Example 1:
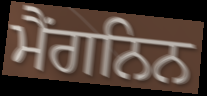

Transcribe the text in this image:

ਮੈਂਗਨਿਨ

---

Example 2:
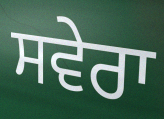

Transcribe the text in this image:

ਸਵੇਰਾ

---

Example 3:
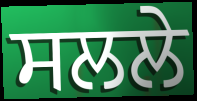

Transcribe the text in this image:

ਸਲਲੇ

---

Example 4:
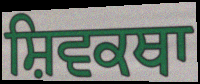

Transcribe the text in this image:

ਸ਼ਿਵਕਥਾ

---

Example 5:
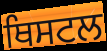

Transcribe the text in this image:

ਥਿਸਟਲ